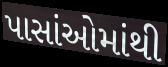
પાસાંઓમાંથી